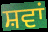
ਸ਼ਵਾਂ